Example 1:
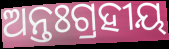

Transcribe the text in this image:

ଅନ୍ତଃଗ୍ରହୀୟ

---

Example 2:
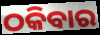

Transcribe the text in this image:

ଠକିବାର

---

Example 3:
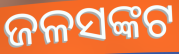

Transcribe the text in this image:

ଜଳସଙ୍କଟ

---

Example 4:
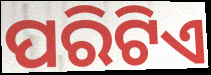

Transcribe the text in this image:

ପରିଟିଏ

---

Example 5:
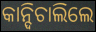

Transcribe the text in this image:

କାନ୍ଦିଚାଲିଲେ